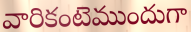
వారికంటెముందుగా